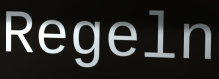
Regeln